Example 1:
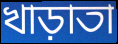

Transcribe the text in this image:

খাড়াতা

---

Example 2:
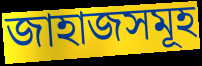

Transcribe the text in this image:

জাহাজসমূহ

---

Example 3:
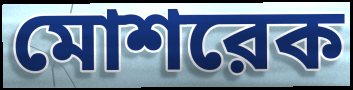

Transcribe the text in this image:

মোশরেক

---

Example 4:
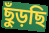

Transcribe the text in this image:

ছুঁড়ছি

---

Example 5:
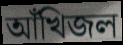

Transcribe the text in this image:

আঁখিজল